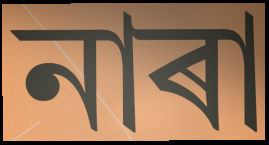
নাৰা